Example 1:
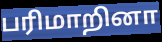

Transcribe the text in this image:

பரிமாறினா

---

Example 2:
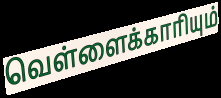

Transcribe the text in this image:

வெள்ளைக்காரியும்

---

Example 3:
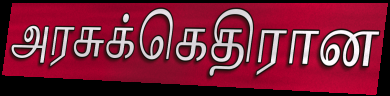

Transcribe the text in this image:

அரசுக்கெதிரான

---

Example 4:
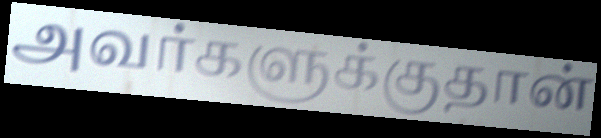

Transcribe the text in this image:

அவர்களுக்குதான்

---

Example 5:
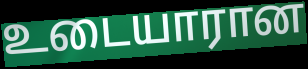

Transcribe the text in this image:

உடையாரான